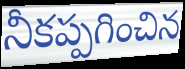
నీకప్పగించిన